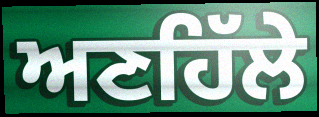
ਅਣਹਿੱਲੇ